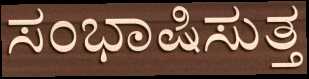
ಸಂಭಾಷಿಸುತ್ತ